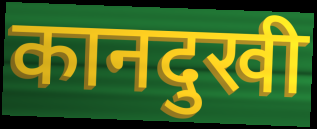
कानदुखी